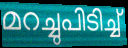
മറച്ചുപിടിച്ച്